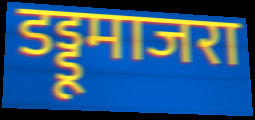
डड्डूमाजरा